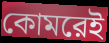
কোমরেই